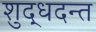
शुद्धदन्त